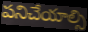
పనిచేయాల్సి